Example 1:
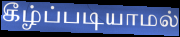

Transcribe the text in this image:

கீழ்ப்படியாமல்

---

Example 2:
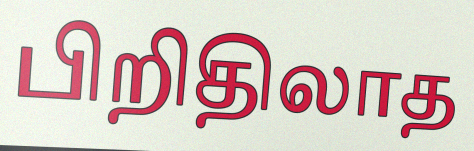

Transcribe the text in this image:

பிறிதிலாத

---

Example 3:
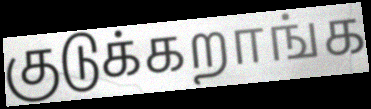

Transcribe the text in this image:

குடுக்கறாங்க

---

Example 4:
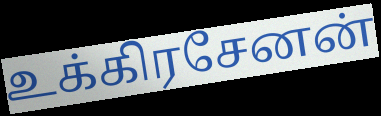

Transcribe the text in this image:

உக்கிரசேனன்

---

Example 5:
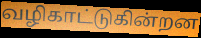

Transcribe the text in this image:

வழிகாட்டுகின்றன